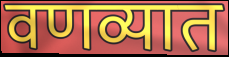
वणव्यात